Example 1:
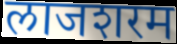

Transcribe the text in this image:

लाजशरम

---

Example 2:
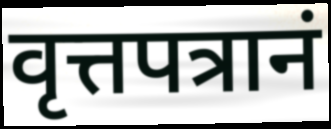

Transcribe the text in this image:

वृत्तपत्रानं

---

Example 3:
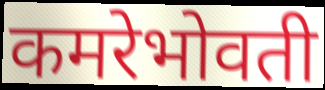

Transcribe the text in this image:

कमरेभोवती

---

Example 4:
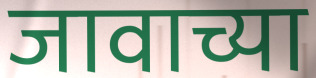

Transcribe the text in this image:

जावाच्या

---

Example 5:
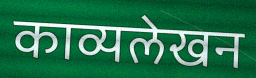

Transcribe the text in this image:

काव्यलेखन